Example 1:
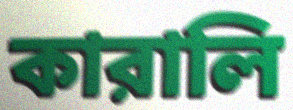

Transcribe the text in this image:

কারালি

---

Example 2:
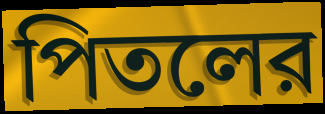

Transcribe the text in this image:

পিতলের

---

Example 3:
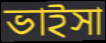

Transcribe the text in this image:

ভাইসা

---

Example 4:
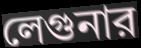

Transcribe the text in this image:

লেগুনার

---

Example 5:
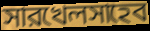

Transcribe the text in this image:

সারখেলসাহেব